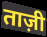
ताज़ी